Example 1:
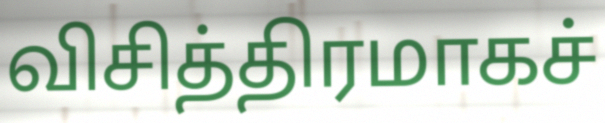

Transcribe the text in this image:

விசித்திரமாகச்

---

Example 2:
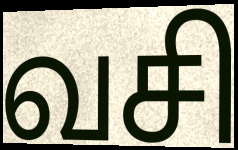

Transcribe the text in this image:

வசி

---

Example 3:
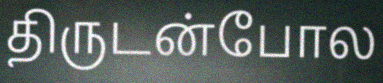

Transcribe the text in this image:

திருடன்போல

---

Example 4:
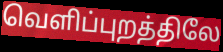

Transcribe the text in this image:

வெளிப்புறத்திலே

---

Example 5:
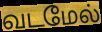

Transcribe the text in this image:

வடமேல்